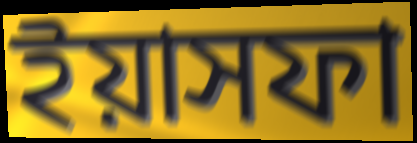
ইয়াসফা